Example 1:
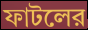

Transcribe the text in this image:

ফাটলের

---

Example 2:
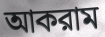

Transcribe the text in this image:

আকরাম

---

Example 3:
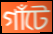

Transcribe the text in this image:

গাঁটে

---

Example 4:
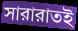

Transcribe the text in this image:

সারারাতই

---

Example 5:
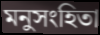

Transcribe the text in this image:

মনুসংহিতা